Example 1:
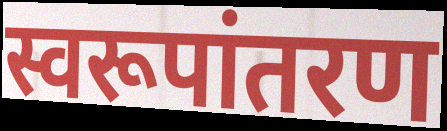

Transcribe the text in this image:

स्वरूपांतरण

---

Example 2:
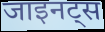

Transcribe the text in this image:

जाइनट्स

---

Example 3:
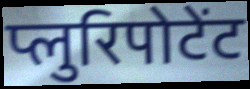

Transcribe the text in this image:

प्लुरिपोटेंट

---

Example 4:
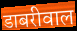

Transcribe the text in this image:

डाबरीवाल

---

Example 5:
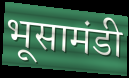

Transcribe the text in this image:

भूसामंडी